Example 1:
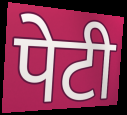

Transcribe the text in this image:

पेटी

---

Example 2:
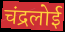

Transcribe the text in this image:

चंद्रलोई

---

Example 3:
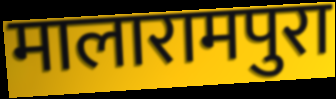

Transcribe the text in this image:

मालारामपुरा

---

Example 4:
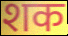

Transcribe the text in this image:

शक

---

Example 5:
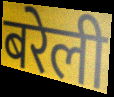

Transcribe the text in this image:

बरेली